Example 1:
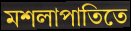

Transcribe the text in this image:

মশলাপাতিতে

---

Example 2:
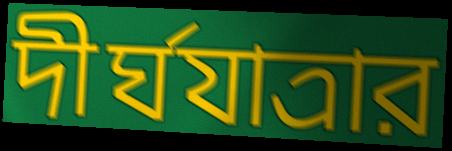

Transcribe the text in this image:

দীর্ঘযাত্রার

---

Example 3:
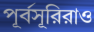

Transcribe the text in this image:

পূর্বসূরিরাও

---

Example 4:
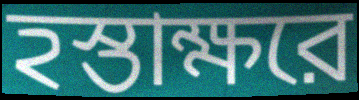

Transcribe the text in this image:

হস্তাক্ষরে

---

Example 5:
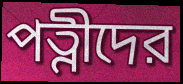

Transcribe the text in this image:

পত্নীদের